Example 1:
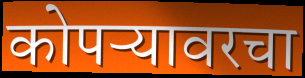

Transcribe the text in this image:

कोपऱ्यावरचा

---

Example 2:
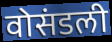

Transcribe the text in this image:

वोसंडली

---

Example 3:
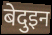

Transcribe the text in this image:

बेदुइन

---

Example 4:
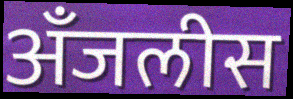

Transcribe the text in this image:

अँजलीस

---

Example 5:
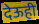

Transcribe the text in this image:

देऊही